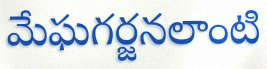
మేఘగర్జనలాంటి